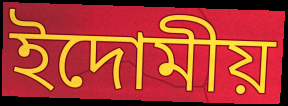
ইদোমীয়